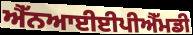
ਐੱਨਆਈਈਪੀਐੱਮਡੀ